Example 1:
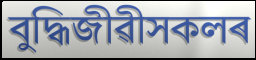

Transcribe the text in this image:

বুদ্ধিজীৱীসকলৰ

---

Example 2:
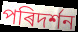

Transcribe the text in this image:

পৰিদৰ্শন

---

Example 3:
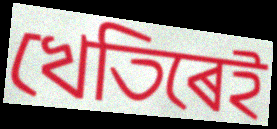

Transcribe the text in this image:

খেতিৰেই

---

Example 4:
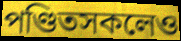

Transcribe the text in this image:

পণ্ডিতসকলেও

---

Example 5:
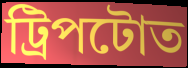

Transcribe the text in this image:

ট্ৰিপটোত